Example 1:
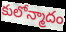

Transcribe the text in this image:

కులోన్మాదం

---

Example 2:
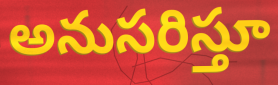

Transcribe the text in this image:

అనుసరిస్తూ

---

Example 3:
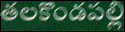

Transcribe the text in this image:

తలకొండపల్లి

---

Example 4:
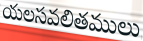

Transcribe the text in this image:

యలసవలితములు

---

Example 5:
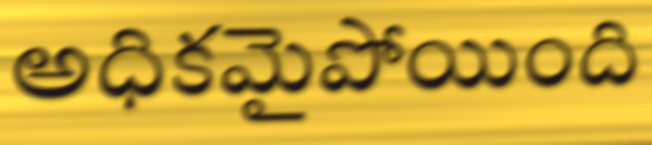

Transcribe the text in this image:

అధికమైపోయింది